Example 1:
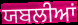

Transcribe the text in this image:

ਯਬਲੀਆਂ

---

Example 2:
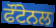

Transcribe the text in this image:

ਫੌਂਟੇਨਲ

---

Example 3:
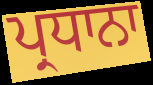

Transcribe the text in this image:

ਪ੍ਰਧਾਨਾ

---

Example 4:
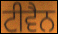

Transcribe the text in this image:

ਟੀਵੈਨ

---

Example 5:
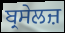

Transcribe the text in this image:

ਬ੍ਰਸੇਲਜ਼